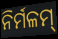
ନିର୍ମଳମ୍